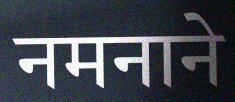
नमनाने